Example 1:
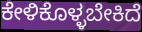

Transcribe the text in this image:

ಕೇಳಿಕೊಳ್ಳಬೇಕಿದೆ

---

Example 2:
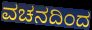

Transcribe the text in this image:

ವಚನದಿಂದ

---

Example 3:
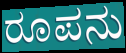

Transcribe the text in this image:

ರೂಪನು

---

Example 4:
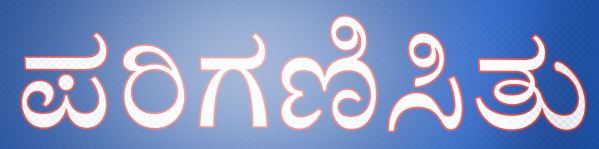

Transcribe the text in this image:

ಪರಿಗಣಿಸಿತು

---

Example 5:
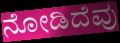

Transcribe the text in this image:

ನೋಡಿದೆವು